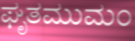
ಘೃತಮುಮಂ